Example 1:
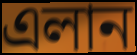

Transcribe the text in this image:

এলান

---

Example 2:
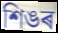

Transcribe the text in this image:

শিঙৰ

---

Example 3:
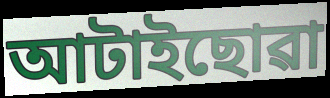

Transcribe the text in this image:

আটাইছোৱা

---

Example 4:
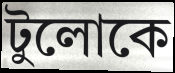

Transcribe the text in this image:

টুলোকে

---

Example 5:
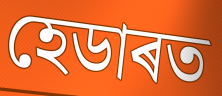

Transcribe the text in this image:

হেডাৰত